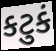
કટુકં